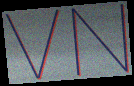
VN